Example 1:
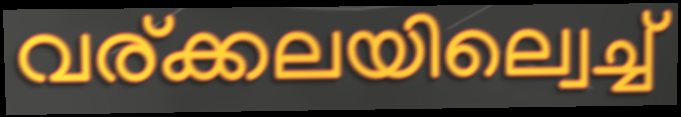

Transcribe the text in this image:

വര്ക്കലയില്വെച്ച്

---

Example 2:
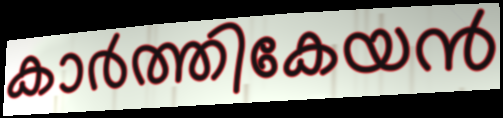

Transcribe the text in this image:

കാർത്തികേയൻ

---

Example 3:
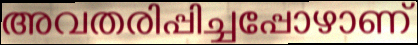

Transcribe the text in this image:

അവതരിപ്പിച്ചപ്പോഴാണ്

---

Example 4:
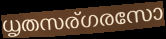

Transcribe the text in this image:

ധൃതസര്ഗരസോ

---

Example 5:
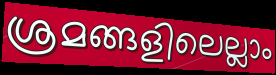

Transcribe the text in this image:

ശ്രമങ്ങളിലെല്ലാം